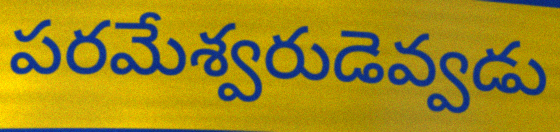
పరమేశ్వరుడెవ్వడు